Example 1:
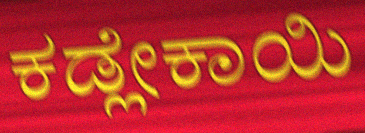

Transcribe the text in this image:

ಕಡ್ಲೇಕಾಯಿ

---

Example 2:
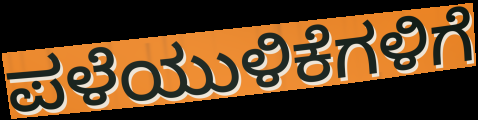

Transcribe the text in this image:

ಪಳೆಯುಳಿಕೆಗಳಿಗೆ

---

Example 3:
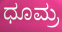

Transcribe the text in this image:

ಧೂಮ್ರ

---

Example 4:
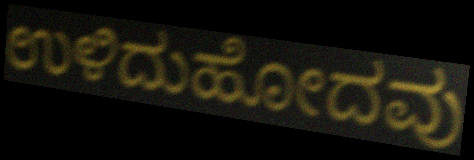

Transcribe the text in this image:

ಉಳಿದುಹೋದವು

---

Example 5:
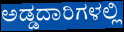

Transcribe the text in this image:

ಅಡ್ಡದಾರಿಗಳಲ್ಲಿ